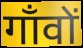
गाँवों